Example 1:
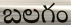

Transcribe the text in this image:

బలగం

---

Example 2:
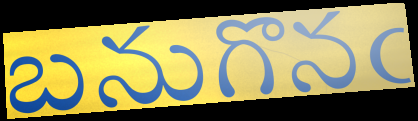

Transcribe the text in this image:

బనుగొనఁ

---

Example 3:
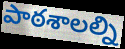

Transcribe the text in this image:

పాఠశాలల్ని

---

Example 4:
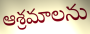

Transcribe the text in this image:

ఆశ్రమాలను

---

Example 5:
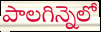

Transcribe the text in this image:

పాలగిన్నెలో